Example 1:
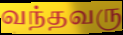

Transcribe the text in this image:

வந்தவரு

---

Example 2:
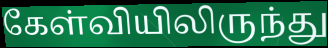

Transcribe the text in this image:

கேள்வியிலிருந்து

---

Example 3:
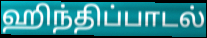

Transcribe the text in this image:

ஹிந்திப்பாடல்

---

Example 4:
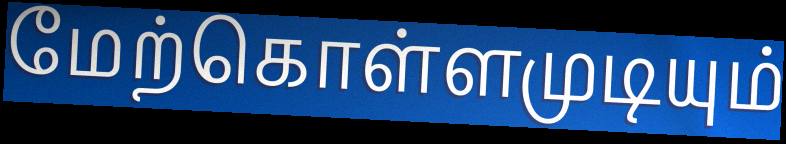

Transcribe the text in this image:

மேற்கொள்ளமுடியும்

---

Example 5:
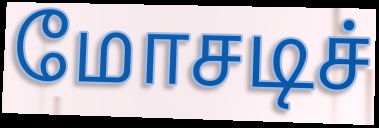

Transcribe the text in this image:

மோசடிச்